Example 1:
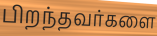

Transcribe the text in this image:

பிறந்தவர்களை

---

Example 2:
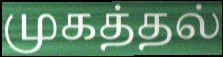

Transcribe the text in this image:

முகத்தல்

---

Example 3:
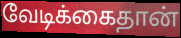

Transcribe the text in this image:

வேடிக்கைதான்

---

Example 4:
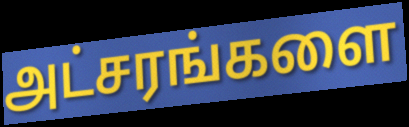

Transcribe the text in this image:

அட்சரங்களை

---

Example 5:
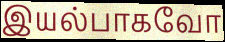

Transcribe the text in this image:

இயல்பாகவோ